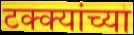
टक्क्यांच्या